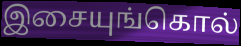
இசையுங்கொல்